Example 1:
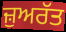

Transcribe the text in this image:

ਜ਼ੁਅਰੱਤ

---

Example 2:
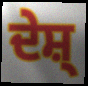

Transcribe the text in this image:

ਦੇਸ਼੍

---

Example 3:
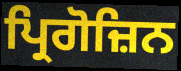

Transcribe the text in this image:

ਪ੍ਰਿਗੋਜ਼ਿਨ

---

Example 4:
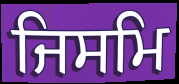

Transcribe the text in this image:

ਜਿਸਮਿ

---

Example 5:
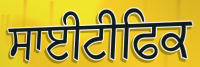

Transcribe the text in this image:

ਸਾਈਟੀਫਿਕ